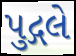
પુદ્ગલે